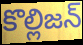
కొల్లిజన్